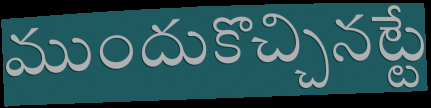
ముందుకొచ్చినట్టే